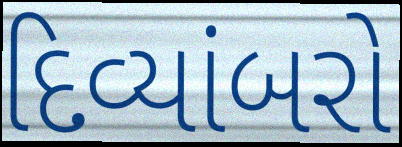
દિવ્યાંબરો